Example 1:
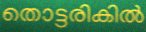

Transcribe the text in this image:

തൊട്ടരികിൽ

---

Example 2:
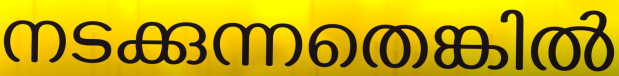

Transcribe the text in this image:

നടക്കുന്നതെങ്കിൽ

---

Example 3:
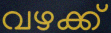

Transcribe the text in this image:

വഴക്ക്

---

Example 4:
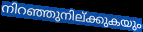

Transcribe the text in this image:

നിറഞ്ഞുനില്ക്കുകയും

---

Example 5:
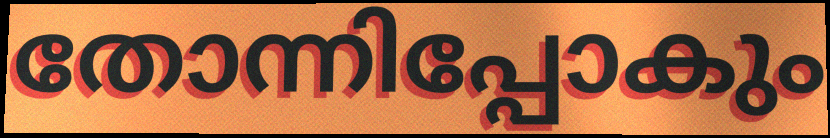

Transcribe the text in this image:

തോന്നിപ്പോകും